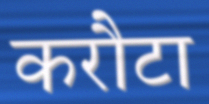
करौटा